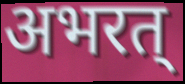
अभरत्